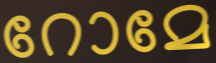
റോമേ